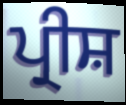
ਪ੍ਰੀਸ਼